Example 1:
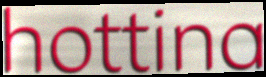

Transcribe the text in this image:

hottina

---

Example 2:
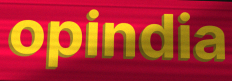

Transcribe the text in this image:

opindia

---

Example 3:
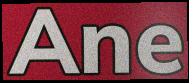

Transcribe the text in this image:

Ane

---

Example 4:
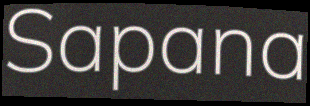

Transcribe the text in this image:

Sapana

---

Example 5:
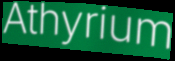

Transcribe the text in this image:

Athyrium